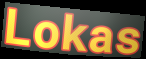
Lokas